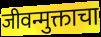
जीवन्मुक्ताचा